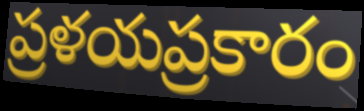
ప్రళయప్రకారం